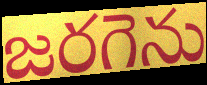
జరగెను